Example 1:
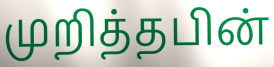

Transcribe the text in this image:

முறித்தபின்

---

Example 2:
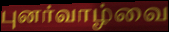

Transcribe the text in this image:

புனர்வாழ்வை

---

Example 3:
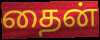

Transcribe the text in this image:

தைன்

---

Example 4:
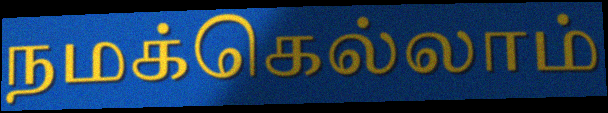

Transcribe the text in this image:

நமக்கெல்லாம்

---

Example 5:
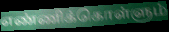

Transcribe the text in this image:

எண்ணிக்கொள்ளும்